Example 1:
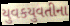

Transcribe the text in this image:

યુવકયુવતીના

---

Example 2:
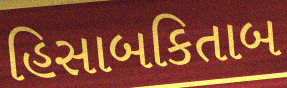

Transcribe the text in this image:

હિસાબકિતાબ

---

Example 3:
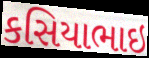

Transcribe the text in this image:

કસિયાભાઇ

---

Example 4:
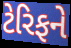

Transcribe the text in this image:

ટેરિફને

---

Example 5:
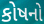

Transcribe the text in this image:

કોષનો